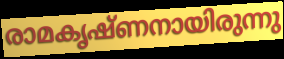
രാമകൃഷ്ണനായിരുന്നു